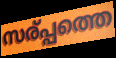
സര്പ്പത്തെ